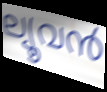
ല്യൂവൻ